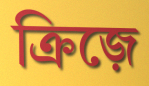
ক্রিজ়ে